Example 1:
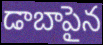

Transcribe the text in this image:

డాబాపైన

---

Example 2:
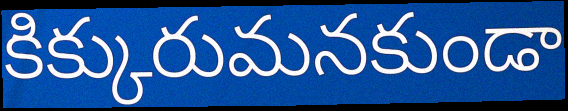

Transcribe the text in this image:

కిక్కురుమనకుండా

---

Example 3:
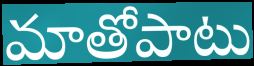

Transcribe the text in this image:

మాతోపాటు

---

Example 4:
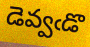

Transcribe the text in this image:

డెవ్వఁడొ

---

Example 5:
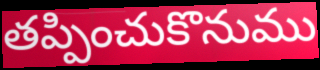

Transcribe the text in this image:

తప్పించుకొనుము